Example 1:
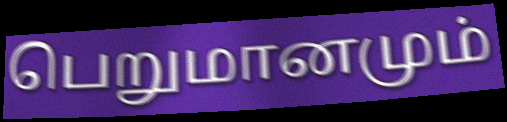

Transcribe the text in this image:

பெறுமானமும்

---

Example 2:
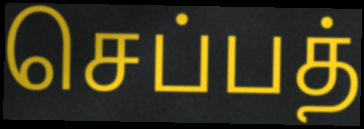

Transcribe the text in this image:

செப்பத்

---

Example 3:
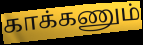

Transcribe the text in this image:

காக்கணும்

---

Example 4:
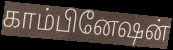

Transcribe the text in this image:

காம்பினேஷன்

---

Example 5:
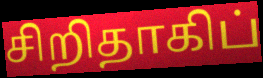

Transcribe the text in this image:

சிறிதாகிப்